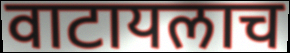
वाटायलाच